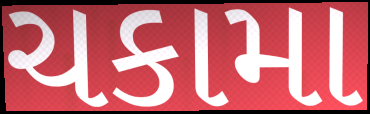
ચકામા